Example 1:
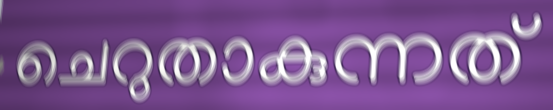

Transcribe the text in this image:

ചെറുതാകുന്നത്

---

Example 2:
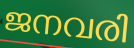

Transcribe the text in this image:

ജനവരി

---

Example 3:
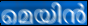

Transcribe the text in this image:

മെയിൻ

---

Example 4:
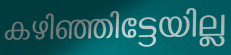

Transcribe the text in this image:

കഴിഞ്ഞിട്ടേയില്ല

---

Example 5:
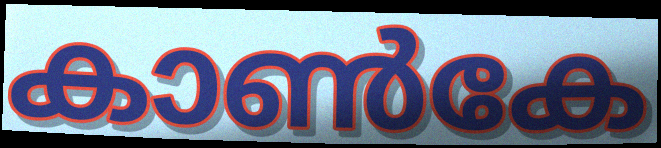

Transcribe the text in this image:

കാൺകേ